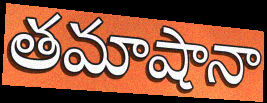
తమాషానా